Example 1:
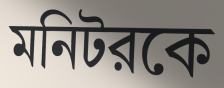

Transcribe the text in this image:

মনিটরকে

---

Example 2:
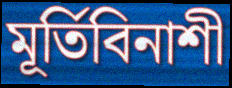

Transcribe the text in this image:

মূর্তিবিনাশী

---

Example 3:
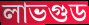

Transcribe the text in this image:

লাভগুড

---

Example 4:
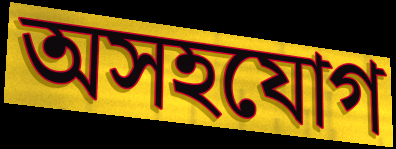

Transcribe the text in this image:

অসহযোগ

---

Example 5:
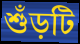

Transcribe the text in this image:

শুঁড়টি